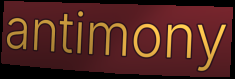
antimony